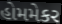
હોમમેકર